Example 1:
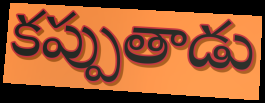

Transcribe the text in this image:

కప్పుతాడు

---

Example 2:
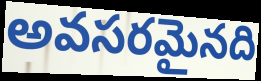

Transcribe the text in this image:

అవసరమైనది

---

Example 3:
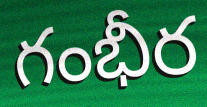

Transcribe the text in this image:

గంభీర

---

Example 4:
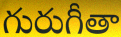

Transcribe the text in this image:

గురుగీతా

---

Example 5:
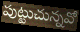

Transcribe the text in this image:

పుట్టుచున్నవో